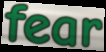
fear